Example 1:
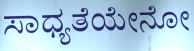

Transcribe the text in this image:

ಸಾಧ್ಯತೆಯೇನೋ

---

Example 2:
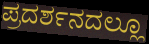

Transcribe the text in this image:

ಪ್ರದರ್ಶನದಲ್ಲೂ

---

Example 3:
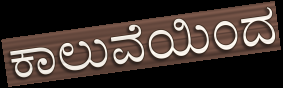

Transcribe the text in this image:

ಕಾಲುವೆಯಿಂದ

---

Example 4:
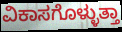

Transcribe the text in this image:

ವಿಕಾಸಗೊಳ್ಳುತ್ತಾ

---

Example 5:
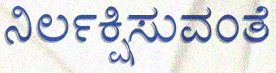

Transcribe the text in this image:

ನಿರ್ಲಕ್ಷಿಸುವಂತೆ